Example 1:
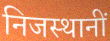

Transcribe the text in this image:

निजस्थानीं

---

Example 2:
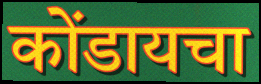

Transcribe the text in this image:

कोंडायचा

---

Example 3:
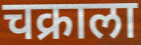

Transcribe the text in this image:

चक्राला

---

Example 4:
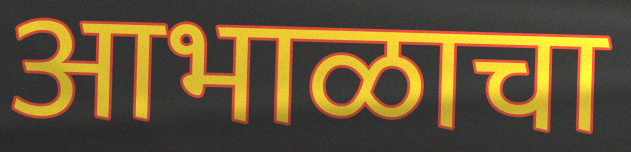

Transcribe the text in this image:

आभाळाचा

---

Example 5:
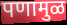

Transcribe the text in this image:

पणामुळ